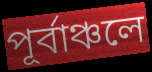
পূর্বাঞ্চলে